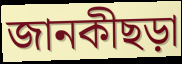
জানকীছড়া